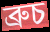
ব্ৰুচ